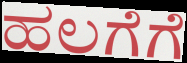
ಹಲಗೆಗೆ